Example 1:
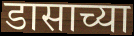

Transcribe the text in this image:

डासाच्या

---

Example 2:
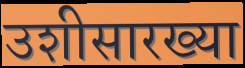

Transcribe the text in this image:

उशीसारख्या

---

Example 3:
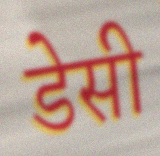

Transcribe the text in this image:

डेसी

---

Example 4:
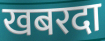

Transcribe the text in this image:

खबरदा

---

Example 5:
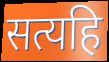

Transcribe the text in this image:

सत्यहि